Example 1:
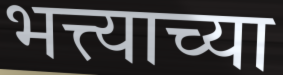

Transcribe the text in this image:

भत्त्याच्या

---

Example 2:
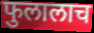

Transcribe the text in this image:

फुलालाच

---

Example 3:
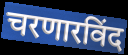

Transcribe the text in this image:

चरणारविंद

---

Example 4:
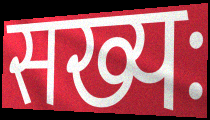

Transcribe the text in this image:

सख्यः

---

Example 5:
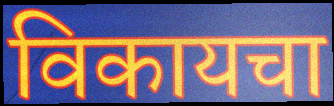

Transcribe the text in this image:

विकायचा